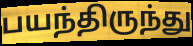
பயந்திருந்து